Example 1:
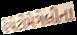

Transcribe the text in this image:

હેપેટોમેગેલીના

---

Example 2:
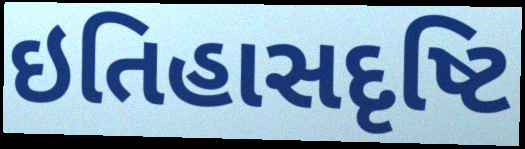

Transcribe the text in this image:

ઇતિહાસદૃષ્ટિ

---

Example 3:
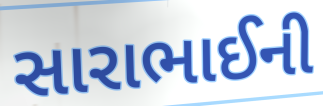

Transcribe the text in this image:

સારાભાઈની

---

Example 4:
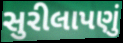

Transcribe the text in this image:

સુરીલાપણું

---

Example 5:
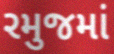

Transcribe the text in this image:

રમુજમાં